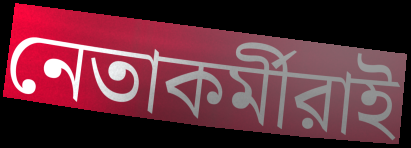
নেতাকর্মীরাই